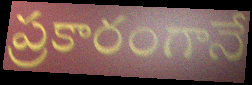
ప్రకారంగానే